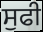
ਸੁਫੀ